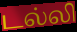
டல்லி